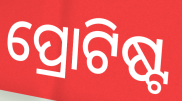
ପ୍ରୋଟିଷ୍ଟ